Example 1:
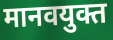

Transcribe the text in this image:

मानवयुक्त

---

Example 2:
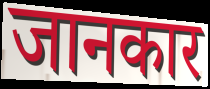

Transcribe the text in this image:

जानकार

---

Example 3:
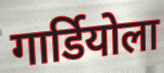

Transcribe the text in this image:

गार्डियोला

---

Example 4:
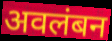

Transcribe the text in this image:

अवलंबन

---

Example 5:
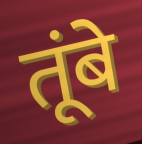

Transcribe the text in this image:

तूंबे